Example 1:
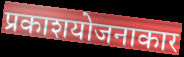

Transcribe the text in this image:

प्रकाशयोजनाकार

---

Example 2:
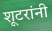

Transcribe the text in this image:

शूटरांनी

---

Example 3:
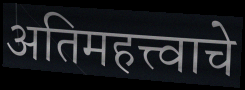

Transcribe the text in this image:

अतिमहत्त्वाचे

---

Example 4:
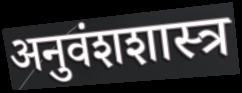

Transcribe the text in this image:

अनुवंशशास्त्र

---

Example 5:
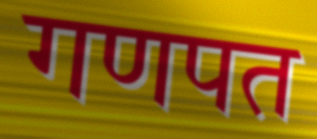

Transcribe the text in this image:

गणपत